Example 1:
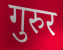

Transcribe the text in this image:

गुरुर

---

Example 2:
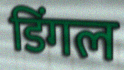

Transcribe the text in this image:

डिंगल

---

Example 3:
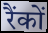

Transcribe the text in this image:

रैंकों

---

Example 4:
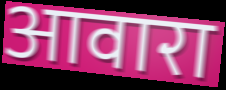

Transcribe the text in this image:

आवारा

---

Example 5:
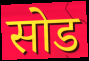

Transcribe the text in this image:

सोड